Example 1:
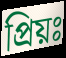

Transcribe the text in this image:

প্রিয়ঃ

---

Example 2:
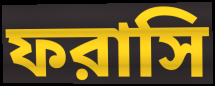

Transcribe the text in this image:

ফরাসি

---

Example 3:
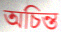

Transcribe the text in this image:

অচিন্ত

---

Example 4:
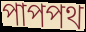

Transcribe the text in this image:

পাপপথ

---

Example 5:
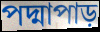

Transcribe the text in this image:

পদ্মাপাড়